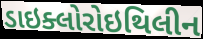
ડાઇક્લોરોઇથિલીન